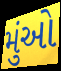
મુંઓ